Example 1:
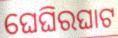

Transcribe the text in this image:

ଘେଘିରଘାଟ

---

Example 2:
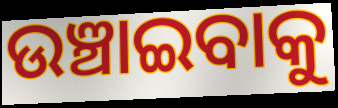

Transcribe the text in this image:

ଉଞ୍ଚାଇବାକୁ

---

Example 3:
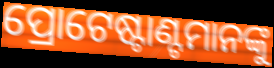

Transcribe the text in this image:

ପ୍ରୋଟେଷ୍ଟାଣ୍ଟମାନଙ୍କୁ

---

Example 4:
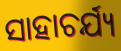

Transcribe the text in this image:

ସାହାଚର୍ଯ୍ୟ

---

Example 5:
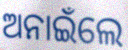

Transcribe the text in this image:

ଅନାଇଁଲେ